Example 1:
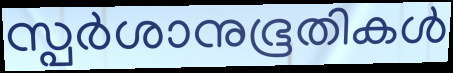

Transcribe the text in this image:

സ്പർശാനുഭൂതികൾ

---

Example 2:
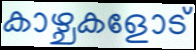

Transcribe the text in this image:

കാഴ്ചകളോട്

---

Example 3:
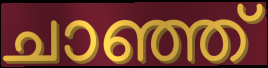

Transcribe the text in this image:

ചാഞ്ഞ്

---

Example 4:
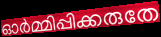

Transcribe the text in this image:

ഓർമ്മിപ്പിക്കരുതേ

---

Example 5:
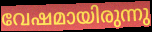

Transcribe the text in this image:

വേഷമായിരുന്നു